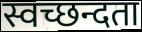
स्वच्छन्दता